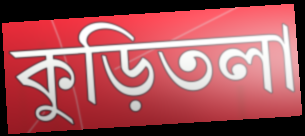
কুড়িতলা